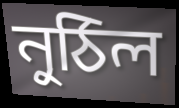
নুঠিল